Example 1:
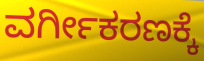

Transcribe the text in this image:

ವರ್ಗೀಕರಣಕ್ಕೆ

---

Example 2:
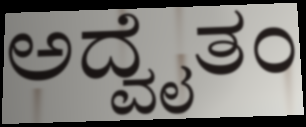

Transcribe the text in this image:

ಅದ್ವೈತಂ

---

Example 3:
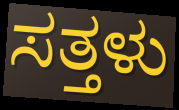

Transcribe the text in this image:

ಸತ್ತಳು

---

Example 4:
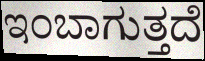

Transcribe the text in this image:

ಇಂಬಾಗುತ್ತದೆ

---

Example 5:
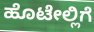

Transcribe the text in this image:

ಹೊಟೇಲ್ಲಿಗೆ